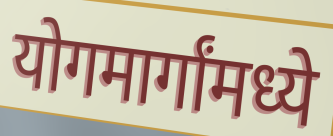
योगमार्गांमध्ये